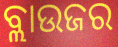
ବ୍ଲାଉଜର